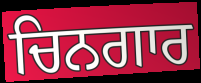
ਚਿਨਗਾਰ